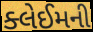
ક્લેઈમની